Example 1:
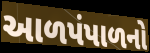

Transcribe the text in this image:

આળપંપાળનો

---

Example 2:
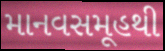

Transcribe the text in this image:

માનવસમૂહથી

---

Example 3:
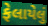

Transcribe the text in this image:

ફેલાયેલું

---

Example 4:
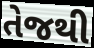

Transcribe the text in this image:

તેજથી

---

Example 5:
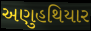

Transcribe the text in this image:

અણુહથિયાર